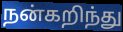
நன்கறிந்து